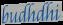
budhdhi